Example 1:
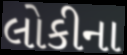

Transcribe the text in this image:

લોકીના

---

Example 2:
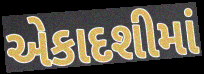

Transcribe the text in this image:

એકાદશીમાં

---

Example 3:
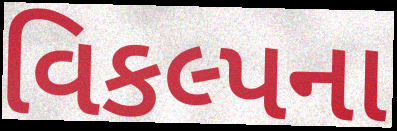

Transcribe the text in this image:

વિકલ્પના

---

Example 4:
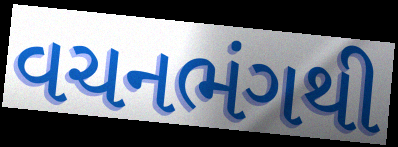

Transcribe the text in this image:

વચનભંગથી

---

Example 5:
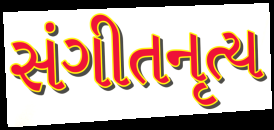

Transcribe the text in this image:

સંગીતનૃત્ય